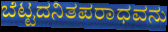
ಬೆಟ್ಟದನಿತಪರಾಧವನು